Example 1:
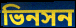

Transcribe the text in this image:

ভিনসন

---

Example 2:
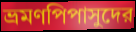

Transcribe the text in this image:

ভ্রমণপিপাসুদের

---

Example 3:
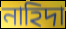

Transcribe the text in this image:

নাহিদা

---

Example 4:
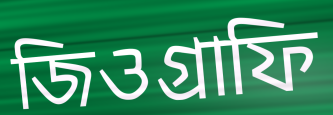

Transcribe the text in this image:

জিওগ্রাফি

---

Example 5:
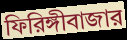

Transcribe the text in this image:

ফিরিঙ্গীবাজার